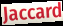
Jaccard